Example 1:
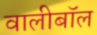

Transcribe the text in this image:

वालीबॉल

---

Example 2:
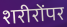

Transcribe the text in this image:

शरीरोंपर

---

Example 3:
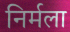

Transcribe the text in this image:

निर्मला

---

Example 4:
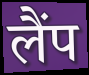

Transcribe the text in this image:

लैंप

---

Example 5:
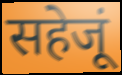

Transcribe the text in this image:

सहेजूं